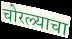
चोरल्याचा